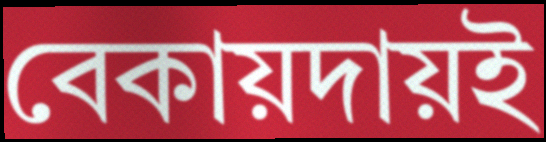
বেকায়দায়ই